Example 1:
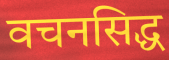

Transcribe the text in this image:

वचनसिद्ध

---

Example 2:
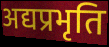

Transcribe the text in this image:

अद्यप्रभृति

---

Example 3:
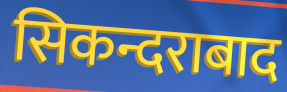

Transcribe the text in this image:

सिकन्दराबाद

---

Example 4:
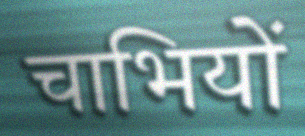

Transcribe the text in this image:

चाभियों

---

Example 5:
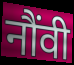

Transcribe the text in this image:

नौंवी